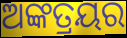
ଅଙ୍କତ୍ରୟର